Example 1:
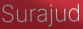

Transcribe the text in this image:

Surajud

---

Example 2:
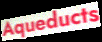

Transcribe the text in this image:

Aqueducts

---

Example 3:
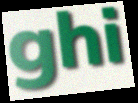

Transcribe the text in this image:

ghi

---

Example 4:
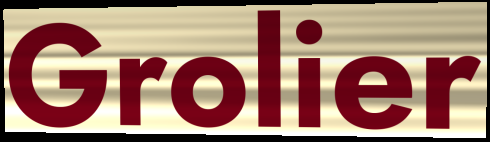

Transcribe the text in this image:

Grolier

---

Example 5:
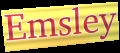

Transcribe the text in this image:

Emsley